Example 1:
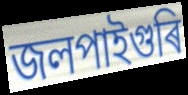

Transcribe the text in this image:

জলপাইগুৰি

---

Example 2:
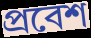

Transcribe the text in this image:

প্ৰবেশ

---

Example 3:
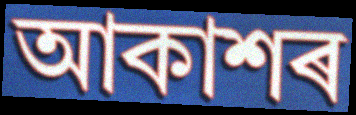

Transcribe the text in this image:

আকাশৰ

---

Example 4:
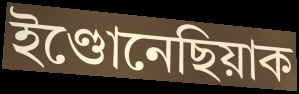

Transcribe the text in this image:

ইণ্ডোনেছিয়াক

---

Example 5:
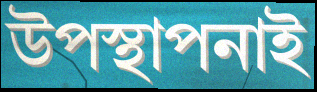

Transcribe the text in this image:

উপস্থাপনাই